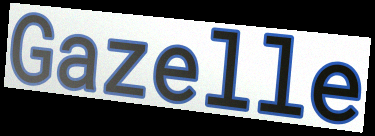
Gazelle